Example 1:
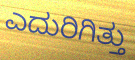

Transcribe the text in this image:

ಎದುರಿಗಿತ್ತು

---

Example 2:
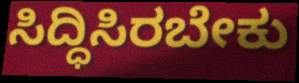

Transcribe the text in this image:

ಸಿದ್ಧಿಸಿರಬೇಕು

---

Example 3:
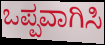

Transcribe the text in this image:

ಒಪ್ಪವಾಗಿಸಿ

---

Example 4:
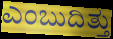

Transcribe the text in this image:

ಎಂಬುದಿತ್ತು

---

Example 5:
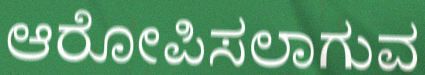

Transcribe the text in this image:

ಆರೋಪಿಸಲಾಗುವ